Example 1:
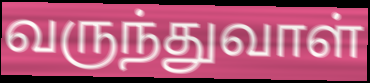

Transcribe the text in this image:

வருந்துவாள்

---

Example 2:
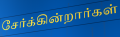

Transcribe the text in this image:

சேர்க்கின்றார்கள்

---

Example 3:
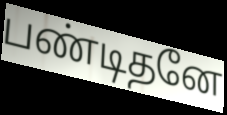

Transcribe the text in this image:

பண்டிதனே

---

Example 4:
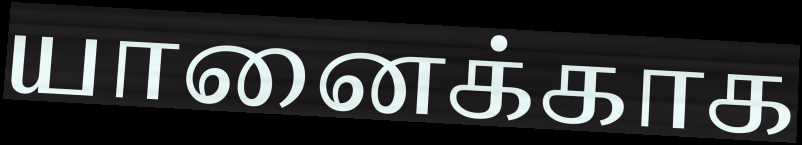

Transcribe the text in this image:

யானைக்காக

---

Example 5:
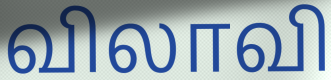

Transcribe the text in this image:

விலாவி